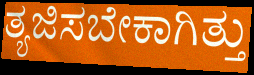
ತ್ಯಜಿಸಬೇಕಾಗಿತ್ತು